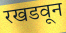
रखडवून